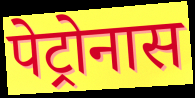
पेट्रोनास